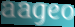
aageo